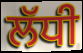
ਲੱਧੀ